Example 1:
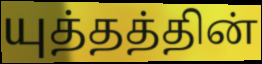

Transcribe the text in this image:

யுத்தத்தின்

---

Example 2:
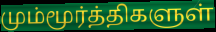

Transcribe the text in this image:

மும்மூர்த்திகளுள்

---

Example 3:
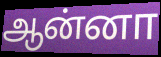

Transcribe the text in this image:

ஆன்னா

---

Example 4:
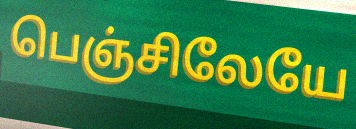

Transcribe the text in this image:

பெஞ்சிலேயே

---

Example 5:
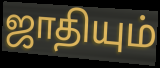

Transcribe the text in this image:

ஜாதியும்